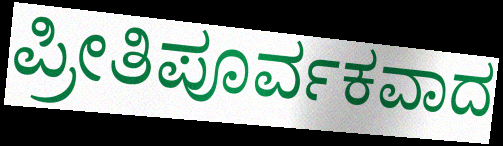
ಪ್ರೀತಿಪೂರ್ವಕವಾದ